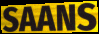
SAANS